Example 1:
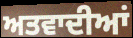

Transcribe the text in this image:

ਅਤਵਾਦੀਆਂ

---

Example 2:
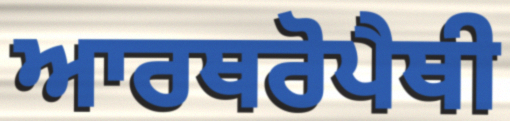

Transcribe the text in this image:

ਆਰਥਰੋਪੈਥੀ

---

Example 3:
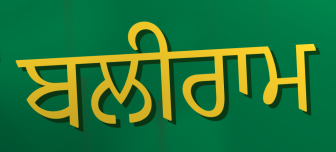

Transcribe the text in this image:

ਬਲੀਰਾਮ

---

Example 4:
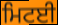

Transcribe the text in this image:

ਮਿਟਈ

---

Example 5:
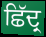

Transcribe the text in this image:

ਛਿੱਦ੍ਰ